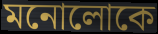
মনোলোকে